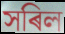
সৰিল